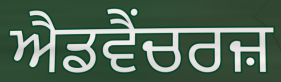
ਐਡਵੈਂਚਰਜ਼